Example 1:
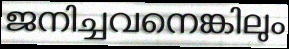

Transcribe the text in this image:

ജനിച്ചവനെങ്കിലും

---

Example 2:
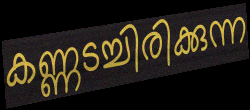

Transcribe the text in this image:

കണ്ണടച്ചിരിക്കുന്ന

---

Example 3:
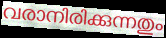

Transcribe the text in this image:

വരാനിരിക്കുന്നതും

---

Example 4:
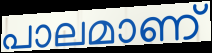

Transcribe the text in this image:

പാലമാണ്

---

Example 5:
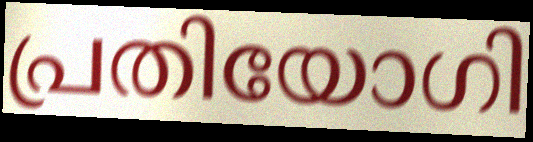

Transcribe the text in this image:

പ്രതിയോഗി